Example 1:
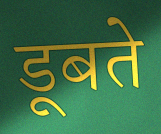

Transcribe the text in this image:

डूबते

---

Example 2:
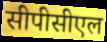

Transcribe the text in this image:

सीपीसीएल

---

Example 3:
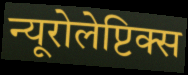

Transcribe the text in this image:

न्यूरोलेप्टिक्स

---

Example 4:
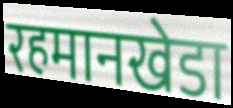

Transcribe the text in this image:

रहमानखेडा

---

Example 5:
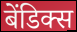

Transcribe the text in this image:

बेंडिक्स